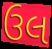
ઉલ